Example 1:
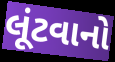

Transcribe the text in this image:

લૂંટવાનો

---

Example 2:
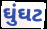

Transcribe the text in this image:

ઘુંઘટ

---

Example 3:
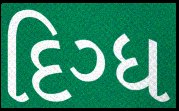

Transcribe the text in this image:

દિગ્ધ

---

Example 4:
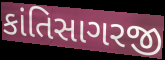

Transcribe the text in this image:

કાંતિસાગરજી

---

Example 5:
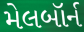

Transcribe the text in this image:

મેલબૉર્ન